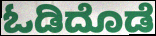
ಓಡಿದೊಡೆ